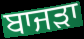
ਬਾਜਡ਼ਾ